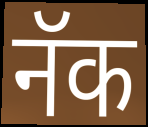
नॅक